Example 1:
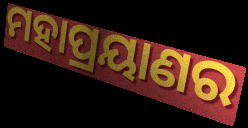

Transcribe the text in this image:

ମହାପ୍ରୟାଣର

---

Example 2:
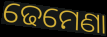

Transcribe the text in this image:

ଢେମେଣା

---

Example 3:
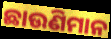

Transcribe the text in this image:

ଛାଉଣିମାନ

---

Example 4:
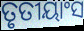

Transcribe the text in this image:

ତୃତୀୟାଂସ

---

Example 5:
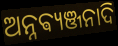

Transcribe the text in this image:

ଅନ୍ନଵ୍ୟଞ୍ଜନାଦି